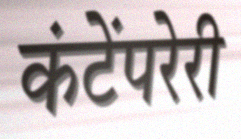
कंटेंपरेरी